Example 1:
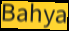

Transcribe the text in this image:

Bahya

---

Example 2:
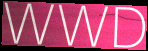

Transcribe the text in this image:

WWD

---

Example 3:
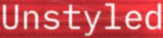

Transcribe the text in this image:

Unstyled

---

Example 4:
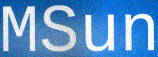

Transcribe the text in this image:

MSun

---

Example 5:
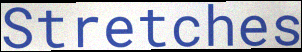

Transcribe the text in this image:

Stretches